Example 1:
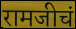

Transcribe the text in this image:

रामजीचं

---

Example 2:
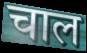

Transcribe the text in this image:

चाल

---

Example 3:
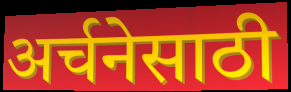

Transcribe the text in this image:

अर्चनेसाठी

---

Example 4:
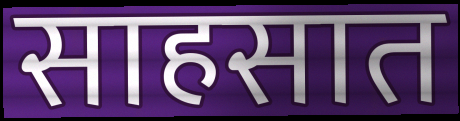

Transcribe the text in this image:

साहसात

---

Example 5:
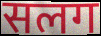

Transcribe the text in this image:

सलग